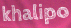
khalipo